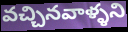
వచ్చినవాళ్ళని